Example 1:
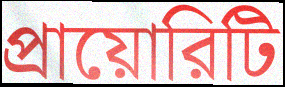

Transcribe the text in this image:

প্রায়োরিটি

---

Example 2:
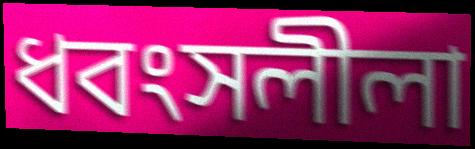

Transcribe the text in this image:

ধবংসলীলা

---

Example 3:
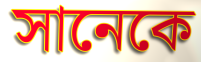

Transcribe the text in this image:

সানেকে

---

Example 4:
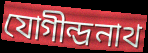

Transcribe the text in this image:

যোগীন্দ্রনাথ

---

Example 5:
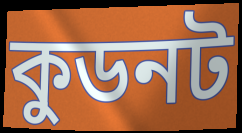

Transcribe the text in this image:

কুডনট